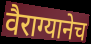
वैराग्यानेच